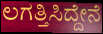
ಲಗತ್ತಿಸಿದ್ದೇನೆ